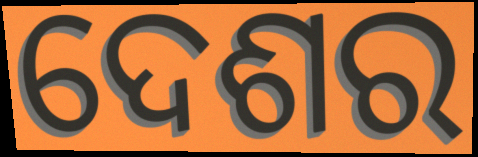
ଦେଶର